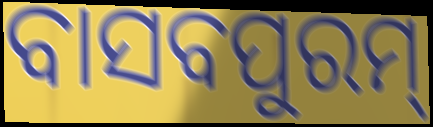
ବାସବପୁରମ୍